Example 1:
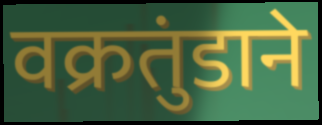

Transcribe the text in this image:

वक्रतुंडाने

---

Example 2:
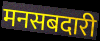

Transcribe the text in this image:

मनसबदारी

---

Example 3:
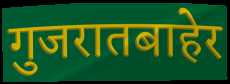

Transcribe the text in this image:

गुजरातबाहेर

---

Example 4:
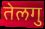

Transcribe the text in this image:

तेलगु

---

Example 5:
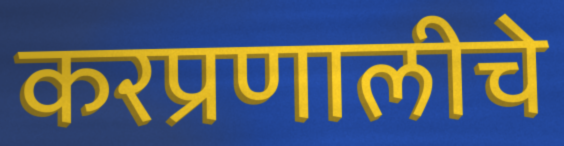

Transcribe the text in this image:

करप्रणालीचे